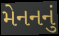
મેનનનું